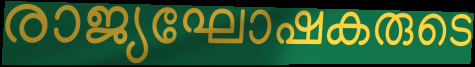
രാജ്യഘോഷകരുടെ